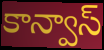
కాన్వాస్